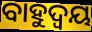
ବାହୁଦ୍ୱୟ